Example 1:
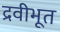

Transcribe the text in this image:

द्रवीभूत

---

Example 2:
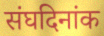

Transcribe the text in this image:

संघदिनांक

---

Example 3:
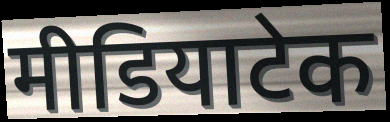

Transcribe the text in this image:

मीडियाटेक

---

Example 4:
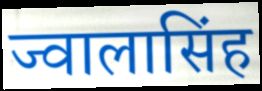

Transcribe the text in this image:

ज्वालासिंह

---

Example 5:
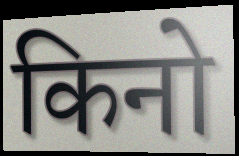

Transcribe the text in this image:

किनो